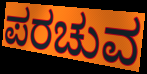
ಪರಚುವ